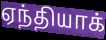
ஏந்தியாக்